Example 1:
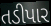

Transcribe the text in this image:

તડીપાર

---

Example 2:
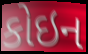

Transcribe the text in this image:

કોઇન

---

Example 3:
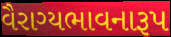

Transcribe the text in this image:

વૈરાગ્યભાવનારૂપ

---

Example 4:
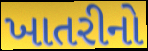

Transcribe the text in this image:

ખાતરીનો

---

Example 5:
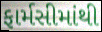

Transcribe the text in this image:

ફાર્મસીમાંથી